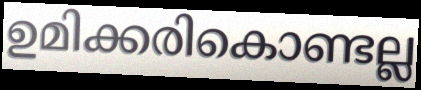
ഉമിക്കരികൊണ്ടല്ല